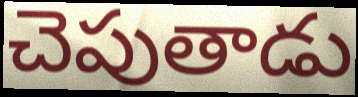
చెపుతాడు